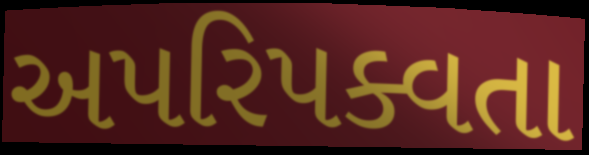
અપરિપક્વતા